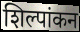
शिल्पांकन